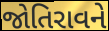
જોતિરાવને